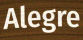
Alegre